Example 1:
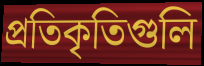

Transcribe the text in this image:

প্রতিকৃতিগুলি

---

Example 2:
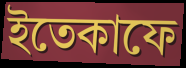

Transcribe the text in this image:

ইতেকাফে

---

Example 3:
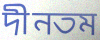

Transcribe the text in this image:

দীনতম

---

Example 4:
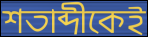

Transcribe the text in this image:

শতাব্দীকেই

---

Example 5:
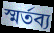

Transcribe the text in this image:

স্মর্তব্য